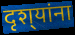
दृश्यांना